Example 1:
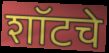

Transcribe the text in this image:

शॉटचे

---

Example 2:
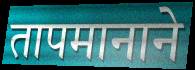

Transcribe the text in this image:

तापमानाने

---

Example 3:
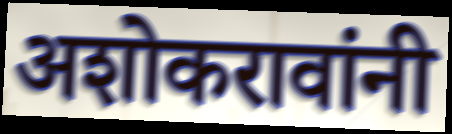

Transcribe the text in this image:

अशोकरावांनी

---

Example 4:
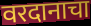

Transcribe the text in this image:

वरदानाचा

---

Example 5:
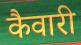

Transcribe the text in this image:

कैवारी